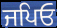
ਜਪਿਓ